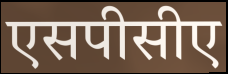
एसपीसीए